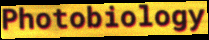
Photobiology